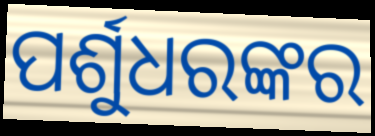
ପର୍ଶୁଧରଙ୍କର